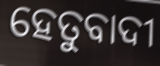
ହେତୁବାଦୀ